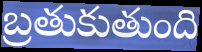
బ్రతుకుతుంది